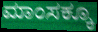
ಮಾಂಸಕ್ಕೂ